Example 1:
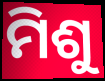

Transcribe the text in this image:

ମିଶୁ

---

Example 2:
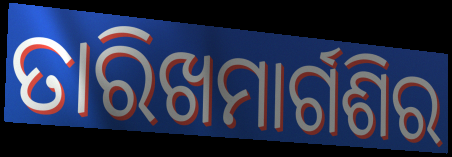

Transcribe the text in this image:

ତାରିଖମାର୍ଗଶିର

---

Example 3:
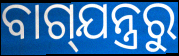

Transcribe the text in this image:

ବାଗ୍‌ଯନ୍ତ୍ରରୁ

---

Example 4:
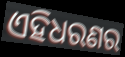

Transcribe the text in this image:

ଏହିଧରଣର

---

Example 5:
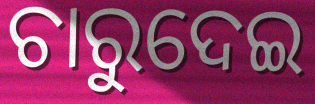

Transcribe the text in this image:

ଚାରୁଦେଇ